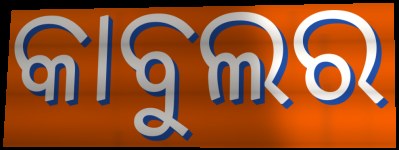
କାବୁଲର